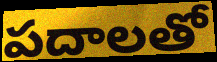
పదాలతో